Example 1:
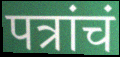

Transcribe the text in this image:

पत्रांचं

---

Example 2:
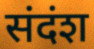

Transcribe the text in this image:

संदंश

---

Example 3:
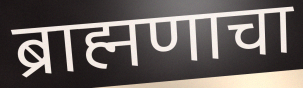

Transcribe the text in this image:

ब्राह्मणाचा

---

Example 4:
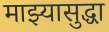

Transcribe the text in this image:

माझ्यासुद्धा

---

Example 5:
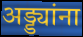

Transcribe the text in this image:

अड्ड्यांना